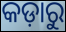
କଡ଼ାରୁ